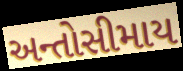
અન્તોસીમાય